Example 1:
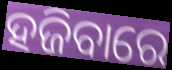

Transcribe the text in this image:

ହଜିବାରେ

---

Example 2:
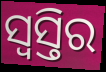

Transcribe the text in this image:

ସ୍ଵସ୍ତିର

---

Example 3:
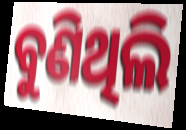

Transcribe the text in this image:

ବୁଣିଥିଲି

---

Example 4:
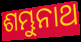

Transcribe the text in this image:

ଶମ୍ଭୁନାଥ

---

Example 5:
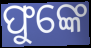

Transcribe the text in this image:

ଫୁଙ୍କେ